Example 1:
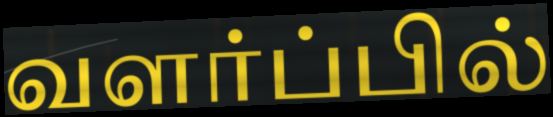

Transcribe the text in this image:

வளர்ப்பில்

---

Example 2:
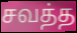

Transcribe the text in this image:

சவத்த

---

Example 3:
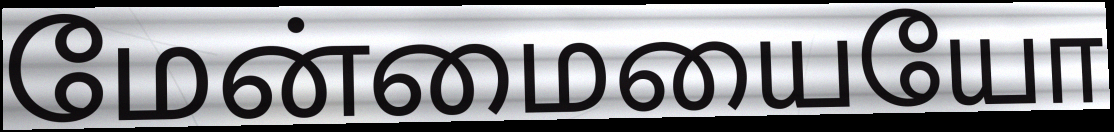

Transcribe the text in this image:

மேன்மையையோ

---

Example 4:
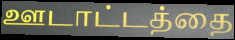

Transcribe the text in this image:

ஊடாட்டத்தை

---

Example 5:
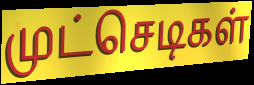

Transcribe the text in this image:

முட்செடிகள்